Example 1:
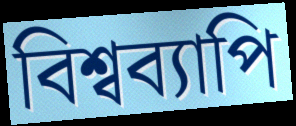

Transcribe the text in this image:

বিশ্বব্যাপি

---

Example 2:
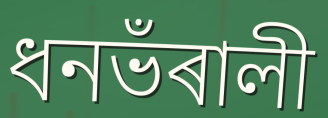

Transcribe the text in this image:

ধনভঁৰালী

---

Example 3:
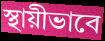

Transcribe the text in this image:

স্থায়ীভাবে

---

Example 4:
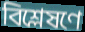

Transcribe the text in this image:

বিশ্লেষণে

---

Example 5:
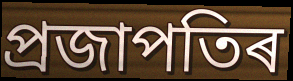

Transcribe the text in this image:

প্ৰজাপতিৰ